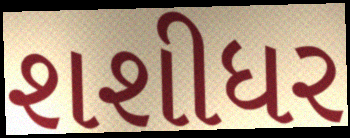
શશીધર